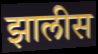
झालीस